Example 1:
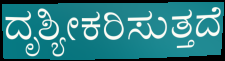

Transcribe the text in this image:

ದೃಶ್ಯೀಕರಿಸುತ್ತದೆ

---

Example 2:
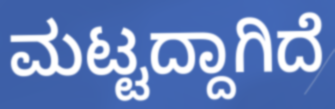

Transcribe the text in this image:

ಮಟ್ಟದ್ದಾಗಿದೆ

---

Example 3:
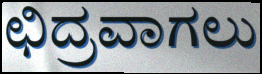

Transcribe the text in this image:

ಛಿದ್ರವಾಗಲು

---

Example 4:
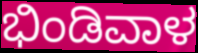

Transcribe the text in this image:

ಭಿಂಡಿವಾಳ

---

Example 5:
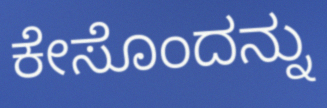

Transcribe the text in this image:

ಕೇಸೊಂದನ್ನು